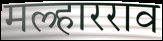
मल्हारराव